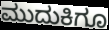
ಮುದುಕಿಗೂ